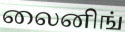
லைனிங்